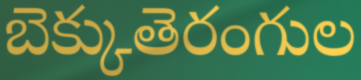
బెక్కుతెరంగుల